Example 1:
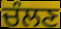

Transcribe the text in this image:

ਚੰਲਣ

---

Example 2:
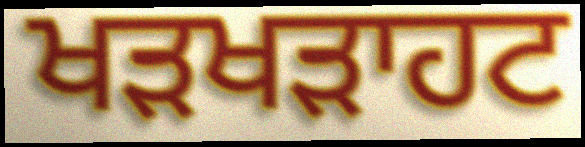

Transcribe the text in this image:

ਖੜਖੜਾਹਟ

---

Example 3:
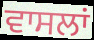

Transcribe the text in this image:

ਵਾਸਲਾਂ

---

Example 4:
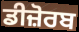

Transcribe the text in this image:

ਡੀਜ਼ੋਰਬ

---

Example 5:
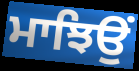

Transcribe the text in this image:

ਮਾਝਿਉਂ